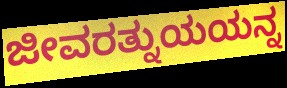
ಜೀವರತ್ನುಯಯನ್ನ